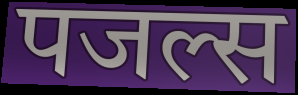
पजल्स